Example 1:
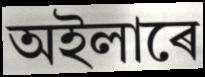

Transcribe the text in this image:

অইলাৰে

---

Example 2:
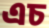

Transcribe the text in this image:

এচ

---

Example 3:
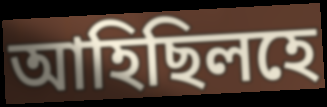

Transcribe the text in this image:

আহিছিলহে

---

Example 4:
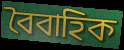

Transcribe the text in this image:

বৈবাহিক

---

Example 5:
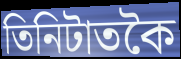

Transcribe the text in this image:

তিনিটাতকৈ